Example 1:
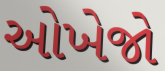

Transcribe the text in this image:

ઓખેજો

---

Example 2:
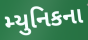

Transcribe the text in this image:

મ્યુનિકના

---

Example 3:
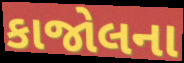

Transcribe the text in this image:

કાજોલના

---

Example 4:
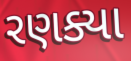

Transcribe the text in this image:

રણક્યા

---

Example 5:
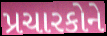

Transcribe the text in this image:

પ્રચારકોને